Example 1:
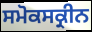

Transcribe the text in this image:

ਸਮੋਕਸਕ੍ਰੀਨ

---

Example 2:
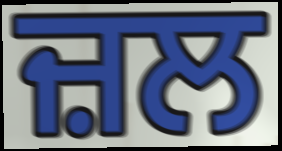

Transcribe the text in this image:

ਜ਼ਲ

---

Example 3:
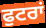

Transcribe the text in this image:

ਫੁਟਰਾਂ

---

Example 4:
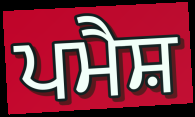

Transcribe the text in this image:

ਪਮੈਸ਼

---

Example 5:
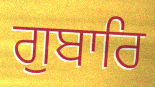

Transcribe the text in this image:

ਗੁਬਾਰਿ